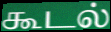
கூடல்